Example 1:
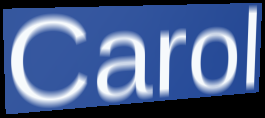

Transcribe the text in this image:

Carol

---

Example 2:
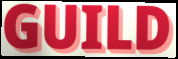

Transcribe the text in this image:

GUILD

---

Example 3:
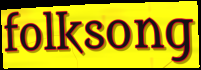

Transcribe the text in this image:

folksong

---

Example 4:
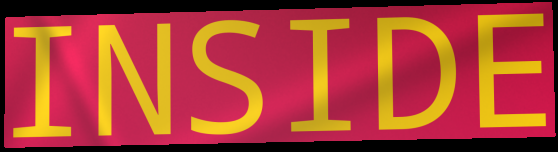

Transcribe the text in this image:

INSIDE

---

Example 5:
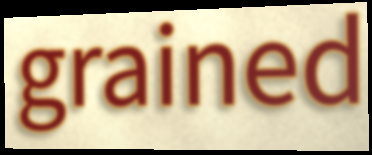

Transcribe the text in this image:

grained